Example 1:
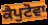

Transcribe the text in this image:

ਕੈਪੁਟੋਵਾ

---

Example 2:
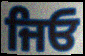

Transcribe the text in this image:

ਜਿਓ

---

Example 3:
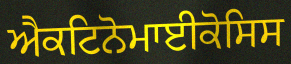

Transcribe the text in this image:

ਐਕਟਿਨੋਮਾਈਕੋਸਿਸ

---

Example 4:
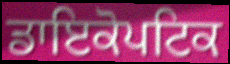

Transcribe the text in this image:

ਡਾਇਕੋਪਟਿਕ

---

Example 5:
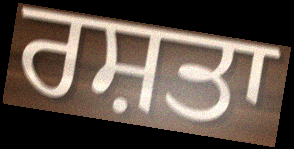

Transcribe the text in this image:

ਰਸ਼ਤਾ